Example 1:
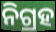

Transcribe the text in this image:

ନିଗ୍ରହ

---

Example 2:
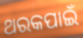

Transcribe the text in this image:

ଥରକପାଇଁ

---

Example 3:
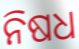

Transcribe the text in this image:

ନିଷଧ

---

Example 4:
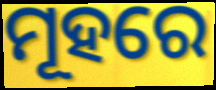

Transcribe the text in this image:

ମୂହରେ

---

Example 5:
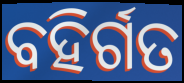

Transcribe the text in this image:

ବହିର୍ଗତ